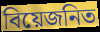
বিয়েজনিত